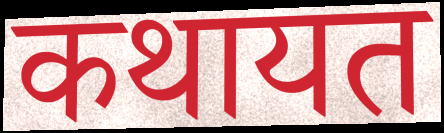
कथायत